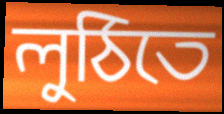
লুঠিতে